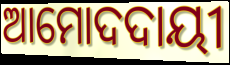
ଆମୋଦଦାୟୀ